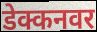
डेक्कनवर